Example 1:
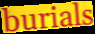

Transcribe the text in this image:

burials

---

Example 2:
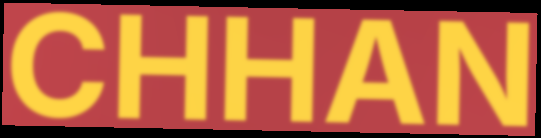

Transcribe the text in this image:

CHHAN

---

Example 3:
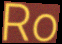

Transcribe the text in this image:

Ro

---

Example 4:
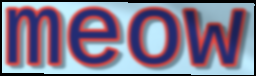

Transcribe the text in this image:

meow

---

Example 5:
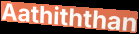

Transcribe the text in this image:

Aathiththan